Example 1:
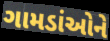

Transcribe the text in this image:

ગામડાંઓને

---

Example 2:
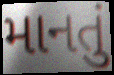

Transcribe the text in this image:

માનતું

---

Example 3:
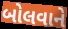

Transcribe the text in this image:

બોલવાને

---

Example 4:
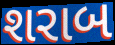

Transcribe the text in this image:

શરાબ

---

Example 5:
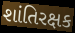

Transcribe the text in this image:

શાંતિરક્ષક